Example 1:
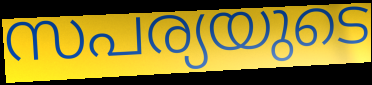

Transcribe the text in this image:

സപര്യയുടെ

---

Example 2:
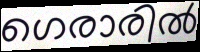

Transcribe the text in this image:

ഗെരാരിൽ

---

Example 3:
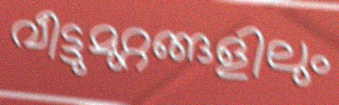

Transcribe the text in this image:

വീട്ടുമുറ്റങ്ങളിലും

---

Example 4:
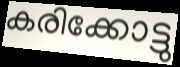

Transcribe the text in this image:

കരിക്കോട്ടു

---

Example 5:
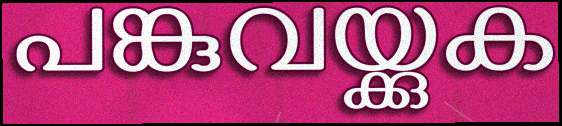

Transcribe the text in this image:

പങ്കുവയ്ക്കുക